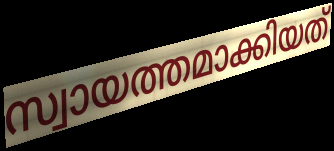
സ്വായത്തമാക്കിയത്